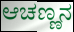
ಆಚಣ್ಣನ